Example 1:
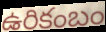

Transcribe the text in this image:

ఉరికంబం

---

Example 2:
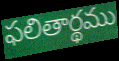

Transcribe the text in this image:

ఫలితార్థము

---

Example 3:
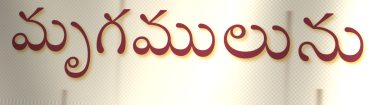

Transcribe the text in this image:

మృగములును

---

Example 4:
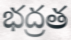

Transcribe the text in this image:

భద్రత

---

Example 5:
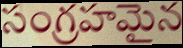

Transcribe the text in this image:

సంగ్రహమైన